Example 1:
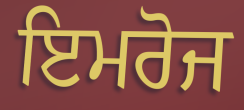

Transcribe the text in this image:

ਇਮਰੋਜ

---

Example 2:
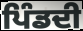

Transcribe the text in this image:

ਪਿੰਡਦੀ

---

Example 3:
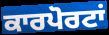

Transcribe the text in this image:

ਕਾਰਪੋਰਟਾਂ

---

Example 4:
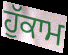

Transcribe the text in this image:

ਹੁੱਕਾਮ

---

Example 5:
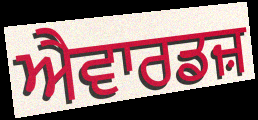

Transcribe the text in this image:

ਐਵਾਰਡਜ਼